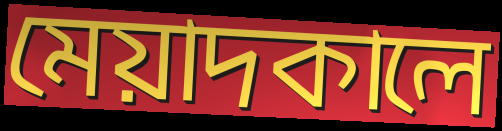
মেয়াদকালে